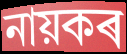
নায়কৰ